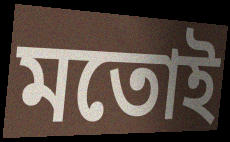
মতোই